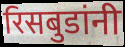
रिसबुडांनी